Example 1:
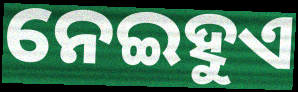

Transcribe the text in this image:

ନେଇହୁଏ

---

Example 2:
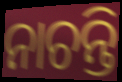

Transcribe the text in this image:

ନାଚନ୍ତି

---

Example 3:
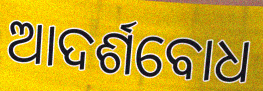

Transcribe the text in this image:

ଆଦର୍ଶବୋଧ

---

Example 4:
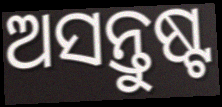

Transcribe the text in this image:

ଅସନ୍ତୁଷ୍ଟ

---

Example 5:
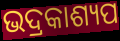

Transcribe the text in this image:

ଭଦ୍ରକାଶ୍ୟପ